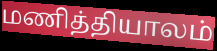
மணித்தியாலம்